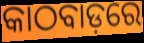
କାଠବାଡ଼ରେ